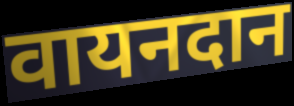
वायनदान